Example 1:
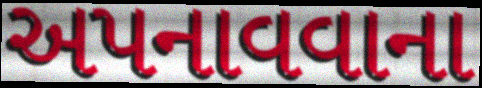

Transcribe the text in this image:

અપનાવવાના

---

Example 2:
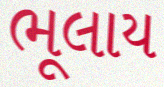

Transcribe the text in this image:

ભૂલાય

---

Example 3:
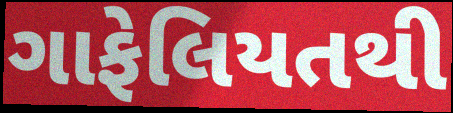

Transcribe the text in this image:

ગાફેલિયતથી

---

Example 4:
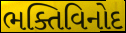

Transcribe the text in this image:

ભક્તિવિનોદ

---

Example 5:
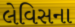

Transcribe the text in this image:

લેવિસના